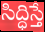
సిద్ధిస్తే